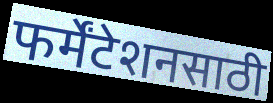
फर्मेंटेशनसाठी